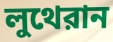
লুথেরান